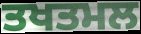
ਤਖਤਮਲ